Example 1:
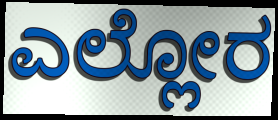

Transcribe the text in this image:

ಎಲ್ಲೋರ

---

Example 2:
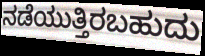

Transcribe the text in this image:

ನಡೆಯುತ್ತಿರಬಹುದು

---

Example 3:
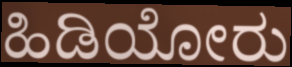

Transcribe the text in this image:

ಹಿಡಿಯೋರು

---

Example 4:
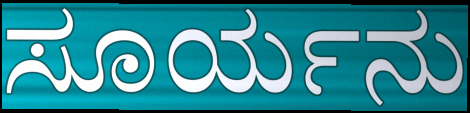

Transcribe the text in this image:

ಸೂರ್ಯನು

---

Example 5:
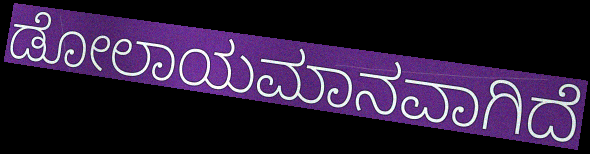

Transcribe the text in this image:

ಡೋಲಾಯಮಾನವಾಗಿದೆ